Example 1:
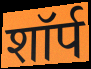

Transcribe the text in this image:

शॉर्प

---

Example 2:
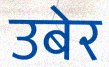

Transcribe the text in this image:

उबेर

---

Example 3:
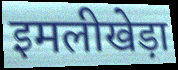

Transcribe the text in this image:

इमलीखेड़ा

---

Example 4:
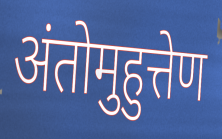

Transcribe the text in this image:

अंतोमुहुत्तेण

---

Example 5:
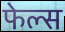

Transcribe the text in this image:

फेल्स